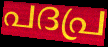
പദപ്ര